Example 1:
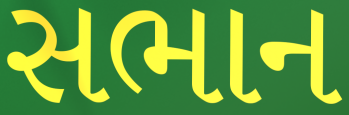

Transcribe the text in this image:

સભાન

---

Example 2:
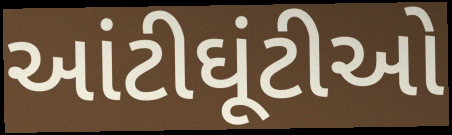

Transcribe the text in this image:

આંટીઘૂંટીઓ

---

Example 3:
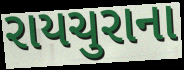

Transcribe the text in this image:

રાયચુરાના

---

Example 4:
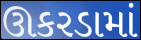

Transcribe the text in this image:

ઊકરડામાં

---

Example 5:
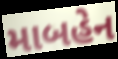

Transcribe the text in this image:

માબહેન